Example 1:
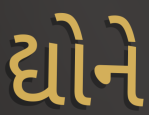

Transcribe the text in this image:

દ્યોને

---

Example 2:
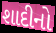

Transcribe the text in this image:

શાદીનો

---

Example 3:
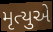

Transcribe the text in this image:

મૃત્યુએ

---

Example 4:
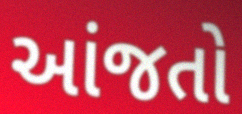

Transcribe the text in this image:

આંજતો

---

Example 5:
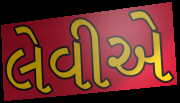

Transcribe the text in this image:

લેવીએ